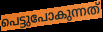
പെട്ടുപോകുന്നത്